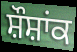
ਸ਼ੌਸ਼ਾਂਕ